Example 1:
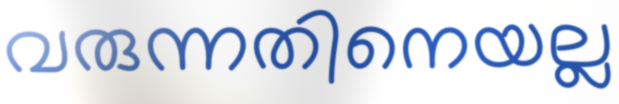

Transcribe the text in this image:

വരുന്നതിനെയല്ല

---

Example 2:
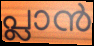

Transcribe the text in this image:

പ്ലാൻ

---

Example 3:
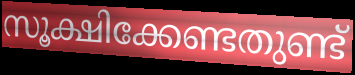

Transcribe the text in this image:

സൂക്ഷിക്കേണ്ടതുണ്ട്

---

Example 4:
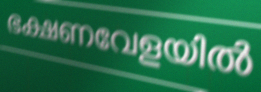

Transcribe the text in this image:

ഭക്ഷണവേളയിൽ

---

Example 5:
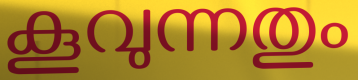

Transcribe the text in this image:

കൂവുന്നതും